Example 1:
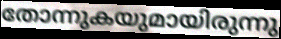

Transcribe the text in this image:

തോന്നുകയുമായിരുന്നു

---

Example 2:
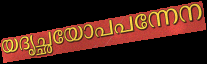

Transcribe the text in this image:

യദൃച്ഛയോപപന്നേന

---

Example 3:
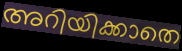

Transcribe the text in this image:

അറിയിക്കാതെ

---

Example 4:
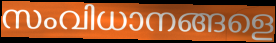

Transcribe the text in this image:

സംവിധാനങ്ങളെ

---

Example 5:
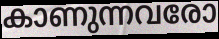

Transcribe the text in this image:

കാണുന്നവരോ